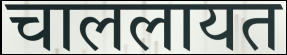
चाललायत